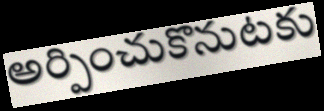
అర్పించుకొనుటకు